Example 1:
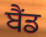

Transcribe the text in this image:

ਬੈਂਡ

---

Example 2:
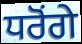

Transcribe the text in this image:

ਧਰੋਂਗੇ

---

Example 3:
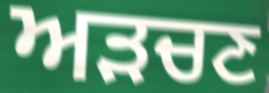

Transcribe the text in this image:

ਅੜਚਣ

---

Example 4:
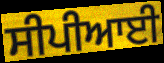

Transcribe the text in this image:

ਸੀਪੀਆਈ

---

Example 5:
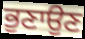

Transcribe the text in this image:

ਭੁਣਾਉਣ